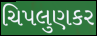
ચિપલુણકર